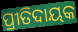
ପ୍ରୀତିଦାୟକ